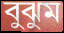
বুঝুম